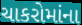
ચાકરોમાંના